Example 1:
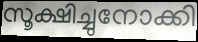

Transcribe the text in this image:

സൂക്ഷിച്ചുനോക്കി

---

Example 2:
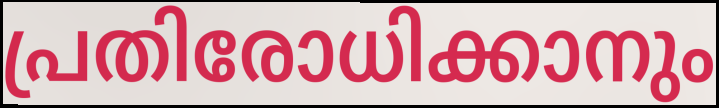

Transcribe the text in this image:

പ്രതിരോധിക്കാനും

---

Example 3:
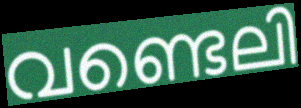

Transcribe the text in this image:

വണ്ടെലി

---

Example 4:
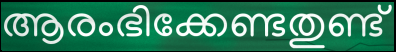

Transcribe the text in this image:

ആരംഭിക്കേണ്ടതുണ്ട്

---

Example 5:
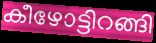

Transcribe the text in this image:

കീഴോട്ടിറങ്ങി